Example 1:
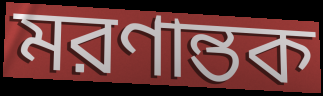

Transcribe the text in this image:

মরণান্তক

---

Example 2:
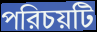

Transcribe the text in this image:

পরিচয়টি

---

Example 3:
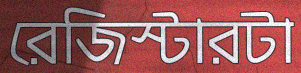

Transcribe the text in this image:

রেজিস্টারটা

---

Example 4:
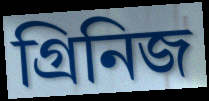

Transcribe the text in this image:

গ্রিনিজ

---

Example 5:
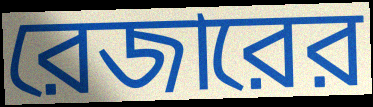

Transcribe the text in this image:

রেজারের